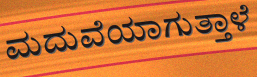
ಮದುವೆಯಾಗುತ್ತಾಳೆ